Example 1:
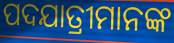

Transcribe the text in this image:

ପଦଯାତ୍ରୀମାନଙ୍କ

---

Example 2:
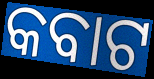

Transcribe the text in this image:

କବାଟ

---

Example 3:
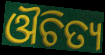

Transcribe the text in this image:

ଔଚିତ୍ଯ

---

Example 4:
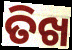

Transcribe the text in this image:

ତିଖ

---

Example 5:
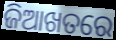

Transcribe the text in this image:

ଜିଆଖତରେ